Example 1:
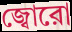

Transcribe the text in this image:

জ্বোরো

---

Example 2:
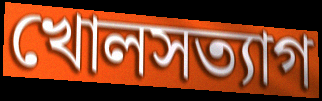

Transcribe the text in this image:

খোলসত্যাগ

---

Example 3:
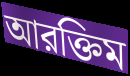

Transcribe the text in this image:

আরক্তিম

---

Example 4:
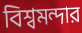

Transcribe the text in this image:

বিশ্বমন্দার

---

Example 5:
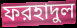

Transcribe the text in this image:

ফরহাদুল